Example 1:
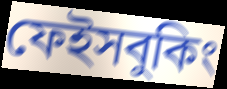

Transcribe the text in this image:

ফেইসবুকিং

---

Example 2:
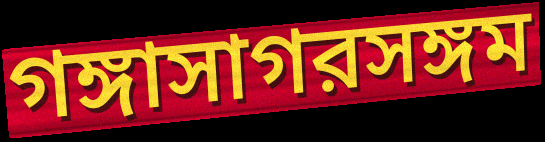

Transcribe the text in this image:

গঙ্গাসাগরসঙ্গম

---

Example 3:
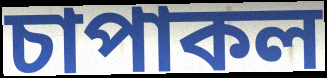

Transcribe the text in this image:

চাপাকল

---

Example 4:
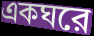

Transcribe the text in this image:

একঘরে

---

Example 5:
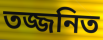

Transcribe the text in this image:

তজ্জনিত